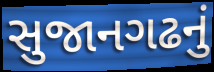
સુજાનગઢનું